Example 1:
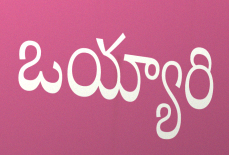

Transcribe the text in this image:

ఒయ్యారి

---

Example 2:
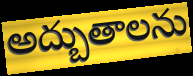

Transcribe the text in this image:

అద్బుతాలను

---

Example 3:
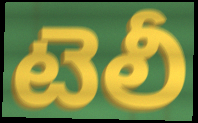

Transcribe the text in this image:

టెలీ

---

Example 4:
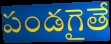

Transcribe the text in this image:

పండగైతే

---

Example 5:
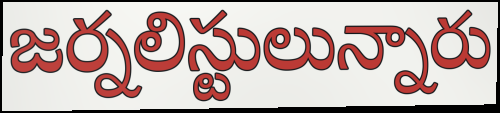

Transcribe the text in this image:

జర్నలిస్టులున్నారు